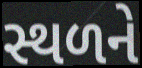
સ્થળને